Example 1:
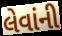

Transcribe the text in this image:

લેવાંની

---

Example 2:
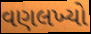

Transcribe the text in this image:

વણલખ્યો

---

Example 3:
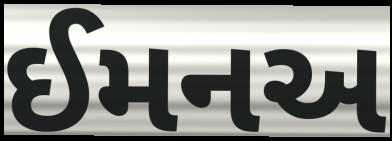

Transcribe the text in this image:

ઈમનઅ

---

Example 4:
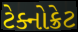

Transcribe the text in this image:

ટેક્નોક્રેટ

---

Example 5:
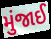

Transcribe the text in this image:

મુંજાઈ